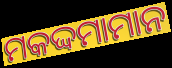
ମକଦ୍ଦମାମାନ